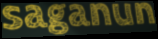
saganun